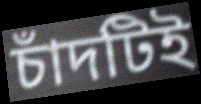
চাঁদটিই